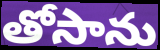
తోసాను